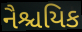
નૈશ્ચયિક